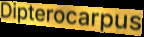
Dipterocarpus